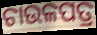
ଚାଉଳପତ୍ର